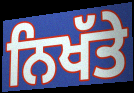
ਨਿਖੱਤੇ